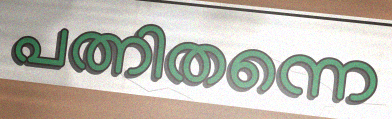
പത്നിതന്നെ